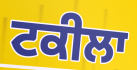
ਟਕੀਲਾ